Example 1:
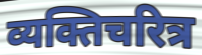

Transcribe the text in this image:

व्यक्तिचरित्र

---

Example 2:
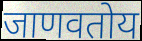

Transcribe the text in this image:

जाणवतोय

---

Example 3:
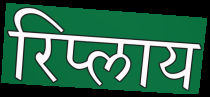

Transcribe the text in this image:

रिप्लाय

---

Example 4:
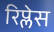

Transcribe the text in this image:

रिप्लेस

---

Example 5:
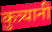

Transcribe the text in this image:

कुत्र्यानी